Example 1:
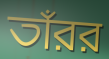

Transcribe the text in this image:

তাঁরর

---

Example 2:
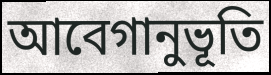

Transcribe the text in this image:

আবেগানুভূতি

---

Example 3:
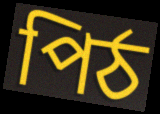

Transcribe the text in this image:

পিঠ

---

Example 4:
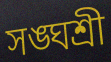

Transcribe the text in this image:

সঙ্ঘশ্রী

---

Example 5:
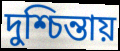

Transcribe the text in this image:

দুশ্চিন্তায়